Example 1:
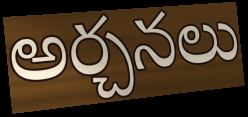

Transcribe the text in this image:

అర్చనలు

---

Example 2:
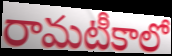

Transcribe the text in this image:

రామటీకాలో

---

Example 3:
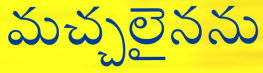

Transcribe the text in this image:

మచ్చలైనను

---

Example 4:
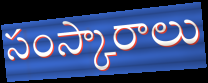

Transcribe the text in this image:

సంస్కారాలు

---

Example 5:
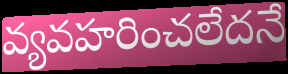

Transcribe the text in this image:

వ్యవహరించలేదనే